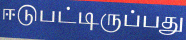
ஈடுபட்டிருப்பது